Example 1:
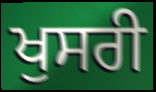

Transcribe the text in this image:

ਖੁਸਰੀ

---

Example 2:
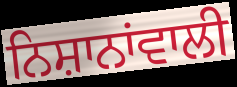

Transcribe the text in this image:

ਨਿਸ਼ਾਨਾਂਵਾਲੀ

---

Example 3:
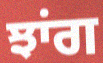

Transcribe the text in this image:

ਝਾਂਗ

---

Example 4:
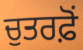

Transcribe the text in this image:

ਚੁਤਰਫ਼ੋਂ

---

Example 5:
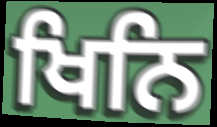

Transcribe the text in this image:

ਖਿਨਿ